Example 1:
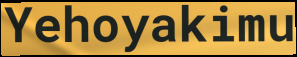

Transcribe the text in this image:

Yehoyakimu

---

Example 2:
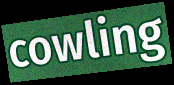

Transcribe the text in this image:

cowling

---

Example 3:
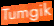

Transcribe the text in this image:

Tumgik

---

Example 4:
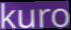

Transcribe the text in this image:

kuro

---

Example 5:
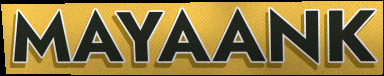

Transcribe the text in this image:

MAYAANK